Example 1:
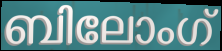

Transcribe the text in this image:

ബിലോംഗ്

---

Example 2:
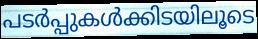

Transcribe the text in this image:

പടർപ്പുകൾക്കിടയിലൂടെ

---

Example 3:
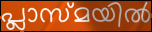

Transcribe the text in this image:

പ്ലാസ്മയിൽ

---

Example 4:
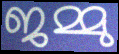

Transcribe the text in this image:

ജമ്മു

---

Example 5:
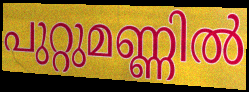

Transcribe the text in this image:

പുറ്റുമണ്ണിൽ